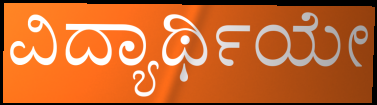
ವಿದ್ಯಾರ್ಥಿಯೇ